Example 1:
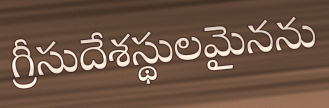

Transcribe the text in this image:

గ్రీసుదేశస్థులమైనను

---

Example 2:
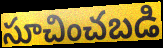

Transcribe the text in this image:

సూచించబడి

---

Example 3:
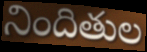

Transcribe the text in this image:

నిందితుల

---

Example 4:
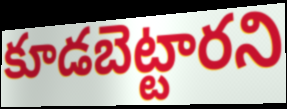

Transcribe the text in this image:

కూడబెట్టారని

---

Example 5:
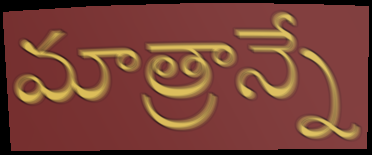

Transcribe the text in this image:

మాత్రాన్నే